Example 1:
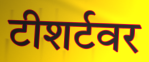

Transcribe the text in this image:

टीशर्टवर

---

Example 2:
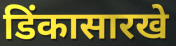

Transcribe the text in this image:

डिंकासारखे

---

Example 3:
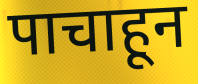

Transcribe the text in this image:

पाचाहून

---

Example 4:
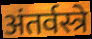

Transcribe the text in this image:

अंतर्वस्त्रे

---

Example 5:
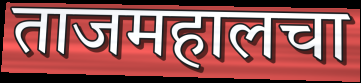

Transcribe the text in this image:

ताजमहालचा